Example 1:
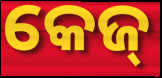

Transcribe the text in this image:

କେଜ୍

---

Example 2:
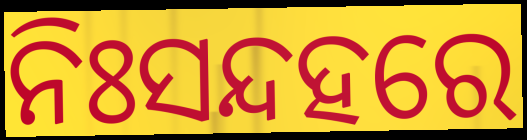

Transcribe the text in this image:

ନିଃସନ୍ଦହରେ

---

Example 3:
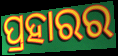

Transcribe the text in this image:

ପ୍ରହାରର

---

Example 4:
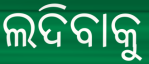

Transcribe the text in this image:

ଲଦିବାକୁ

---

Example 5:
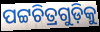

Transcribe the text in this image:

ପଟ୍ଟଚିତ୍ରଗୁଡ଼ିକୁ